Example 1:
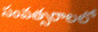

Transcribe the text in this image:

సంవత్సరాలలో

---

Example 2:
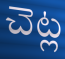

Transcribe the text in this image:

చెట్ల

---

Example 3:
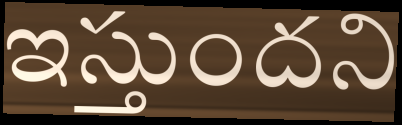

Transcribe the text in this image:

ఇస్తుందని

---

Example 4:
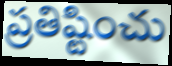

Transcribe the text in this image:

ప్రతిష్టించు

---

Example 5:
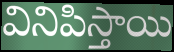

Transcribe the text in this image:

వినిపిస్తాయి